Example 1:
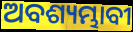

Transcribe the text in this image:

ଅବଶ୍ୟମ୍ଭାବୀ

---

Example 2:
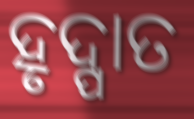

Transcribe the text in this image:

ହୃଦ୍ପାତ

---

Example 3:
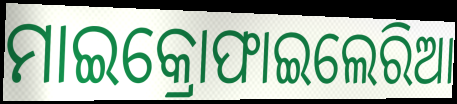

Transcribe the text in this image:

ମାଇକ୍ରୋଫାଇଲେରିଆ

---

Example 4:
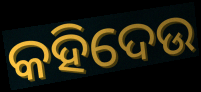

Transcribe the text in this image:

କହିଦେଉ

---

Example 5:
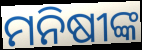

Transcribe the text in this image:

ମନିଷୀଙ୍କ